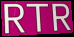
RTR